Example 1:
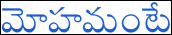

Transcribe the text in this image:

మోహమంటే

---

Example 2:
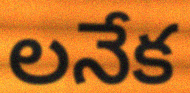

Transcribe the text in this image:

లనేక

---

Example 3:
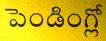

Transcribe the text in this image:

పెండింగ్లో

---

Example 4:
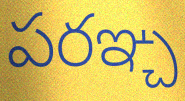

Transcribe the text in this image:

పరఞ్చ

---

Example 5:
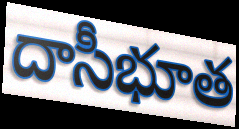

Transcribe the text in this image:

దాసీభూత